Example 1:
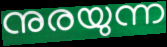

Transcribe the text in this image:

നുരയുന്ന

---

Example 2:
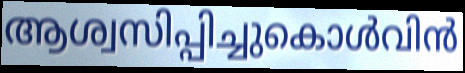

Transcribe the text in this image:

ആശ്വസിപ്പിച്ചുകൊൾവിൻ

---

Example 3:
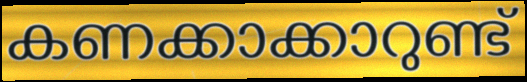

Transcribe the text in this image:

കണക്കാക്കാറുണ്ട്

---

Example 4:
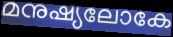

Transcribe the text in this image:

മനുഷ്യലോകേ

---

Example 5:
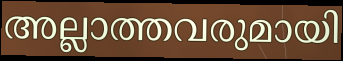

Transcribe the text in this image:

അല്ലാത്തവരുമായി